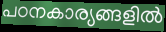
പഠനകാര്യങ്ങളിൽ